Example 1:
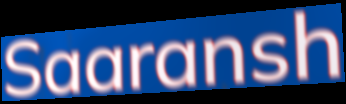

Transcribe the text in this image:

Saaransh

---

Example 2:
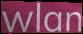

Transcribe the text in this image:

wlan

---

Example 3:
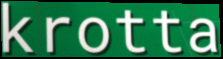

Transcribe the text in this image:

krotta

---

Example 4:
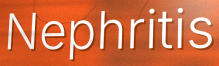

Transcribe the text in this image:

Nephritis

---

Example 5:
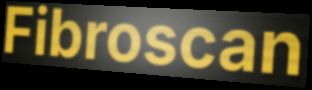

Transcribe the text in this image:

Fibroscan